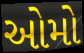
ઓમો